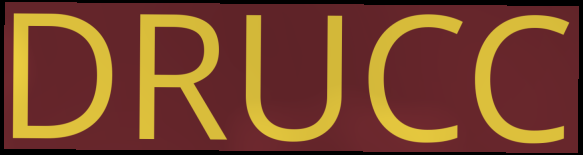
DRUCC